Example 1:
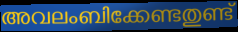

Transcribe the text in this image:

അവലംബിക്കേണ്ടതുണ്ട്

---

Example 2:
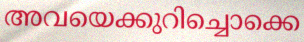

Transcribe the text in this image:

അവയെക്കുറിച്ചൊക്കെ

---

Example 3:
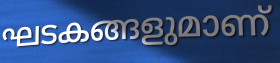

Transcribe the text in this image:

ഘടകങ്ങളുമാണ്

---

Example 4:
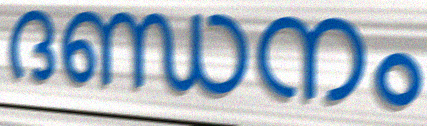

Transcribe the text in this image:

ദണ്ഡനം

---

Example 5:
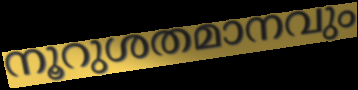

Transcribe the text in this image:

നൂറുശതമാനവും